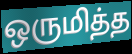
ஒருமித்த